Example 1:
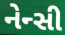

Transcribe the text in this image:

નેન્સી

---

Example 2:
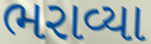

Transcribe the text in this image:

ભરાવ્યા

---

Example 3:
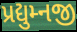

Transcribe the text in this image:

પ્રદ્યુમ્નજી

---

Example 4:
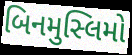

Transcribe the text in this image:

બિનમુસ્લિમો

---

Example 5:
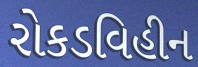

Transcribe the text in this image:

રોકડવિહીન